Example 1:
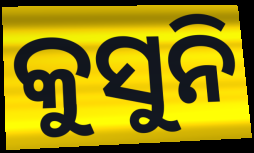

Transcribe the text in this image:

କୁସୁନି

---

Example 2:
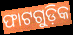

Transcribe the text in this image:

ଫାଟଗୁଡ଼ିକ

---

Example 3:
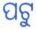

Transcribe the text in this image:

ପଟୁ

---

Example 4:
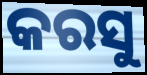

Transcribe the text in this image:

କରସୁ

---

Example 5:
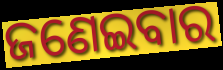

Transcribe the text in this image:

ଜଣେଇବାର